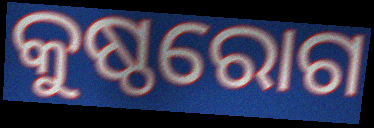
କୁଷ୍ଠରୋଗ